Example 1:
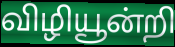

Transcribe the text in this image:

விழியூன்றி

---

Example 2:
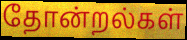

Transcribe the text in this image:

தோன்றல்கள்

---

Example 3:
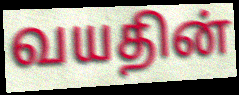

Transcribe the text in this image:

வயதின்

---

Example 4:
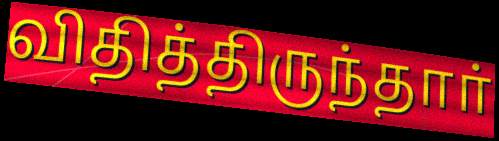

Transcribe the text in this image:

விதித்திருந்தார்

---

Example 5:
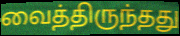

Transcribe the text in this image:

வைத்திருந்தது